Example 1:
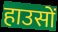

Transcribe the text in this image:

हाउसों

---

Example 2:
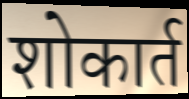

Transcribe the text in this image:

शोकार्त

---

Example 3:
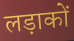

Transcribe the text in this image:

लड़ाकों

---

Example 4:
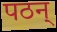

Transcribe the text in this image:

पठन्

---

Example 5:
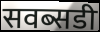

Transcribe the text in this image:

सवब्सडी